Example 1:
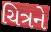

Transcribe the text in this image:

ચિત્રને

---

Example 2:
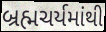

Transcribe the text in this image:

બ્રહ્મચર્યમાંથી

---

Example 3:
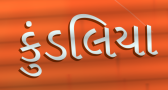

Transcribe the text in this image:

કુંડલિયા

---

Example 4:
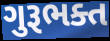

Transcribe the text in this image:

ગુરૂભક્ત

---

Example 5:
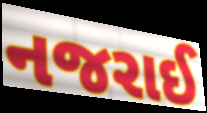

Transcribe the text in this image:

નજરાઈ